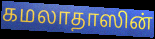
கமலாதாஸின்